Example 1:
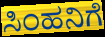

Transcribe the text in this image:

ಸಿಂಹನಿಗೆ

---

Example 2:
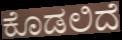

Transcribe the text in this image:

ಕೊಡಲಿದೆ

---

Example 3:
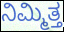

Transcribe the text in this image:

ನಿಮ್ಮಿತ್ತ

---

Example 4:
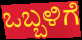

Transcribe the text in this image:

ಒಬ್ಬಳಿಗೆ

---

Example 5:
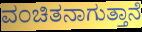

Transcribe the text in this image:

ವಂಚಿತನಾಗುತ್ತಾನೆ